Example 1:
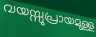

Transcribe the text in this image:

വയസ്സുപ്രായമുള്ള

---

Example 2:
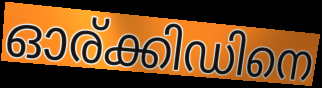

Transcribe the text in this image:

ഓര്ക്കിഡിനെ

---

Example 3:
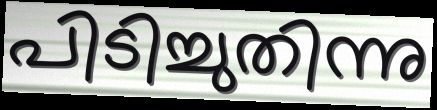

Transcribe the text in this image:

പിടിച്ചുതിന്നു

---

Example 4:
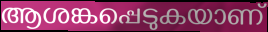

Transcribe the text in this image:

ആശങ്കപ്പെടുകയാണ്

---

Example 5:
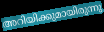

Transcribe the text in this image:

അറിയിക്കുമായിരുന്നു